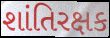
શાંતિરક્ષક